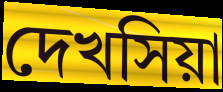
দেখসিয়া